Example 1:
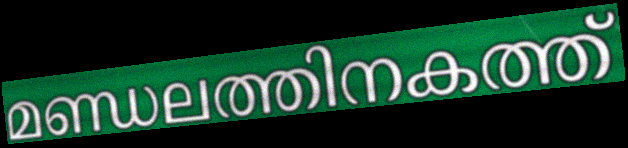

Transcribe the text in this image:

മണ്ഡലത്തിനകത്ത്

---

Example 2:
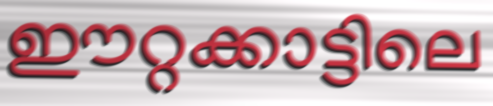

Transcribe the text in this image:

ഈറ്റക്കാട്ടിലെ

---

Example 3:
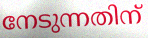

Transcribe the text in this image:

നേടുന്നതിന്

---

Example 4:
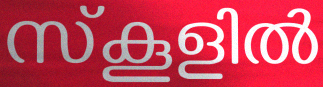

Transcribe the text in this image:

സ്‌കൂളിൽ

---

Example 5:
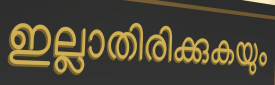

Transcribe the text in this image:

ഇല്ലാതിരിക്കുകയും